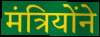
मंत्रियोंने